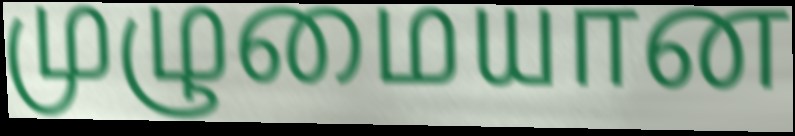
முழுமையான